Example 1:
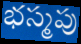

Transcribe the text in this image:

భస్మపు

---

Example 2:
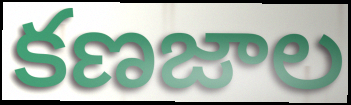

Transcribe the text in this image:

కణజాల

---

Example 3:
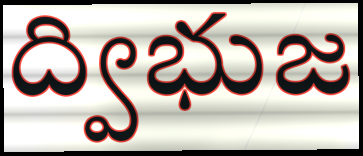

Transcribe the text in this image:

ద్విభుజ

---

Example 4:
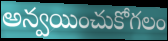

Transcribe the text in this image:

అన్వయించుకోగలం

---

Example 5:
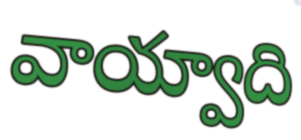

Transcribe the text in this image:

వాయ్వాది